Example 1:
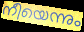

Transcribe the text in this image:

നീയെന്നും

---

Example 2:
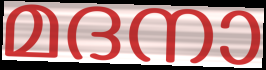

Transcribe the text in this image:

മദനാ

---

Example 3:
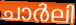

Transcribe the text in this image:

ചാർലി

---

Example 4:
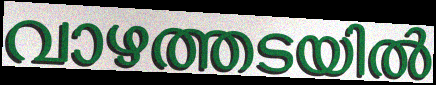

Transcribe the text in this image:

വാഴത്തടയിൽ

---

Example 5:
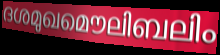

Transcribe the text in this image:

ദശമുഖമൌലിബലിം